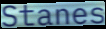
Stanes